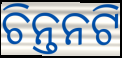
ଚିନ୍ତନଟି